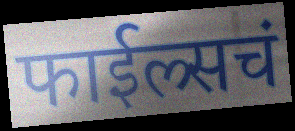
फाईल्सचं